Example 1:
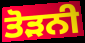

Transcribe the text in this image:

ਤੋੜਨੀ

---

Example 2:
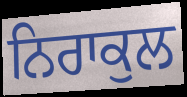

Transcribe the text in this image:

ਨਿਰਾਕੁਲ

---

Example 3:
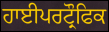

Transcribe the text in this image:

ਹਾਈਪਰਟ੍ਰੌਫਿਕ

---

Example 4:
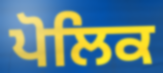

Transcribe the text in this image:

ਪੋਲਿਕ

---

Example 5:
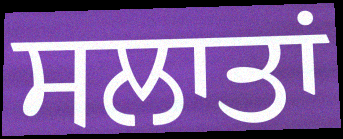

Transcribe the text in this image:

ਸਲਾਤਾਂ